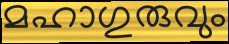
മഹാഗുരുവും